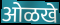
ओळखे